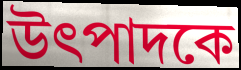
উৎপাদকে